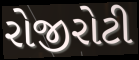
રોજીરોટી